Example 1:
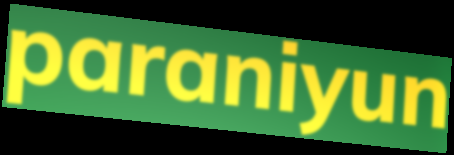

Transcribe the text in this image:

paraniyun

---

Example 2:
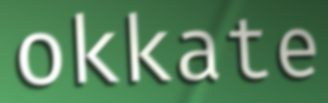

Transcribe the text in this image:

okkate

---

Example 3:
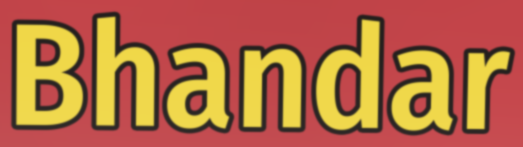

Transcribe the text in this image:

Bhandar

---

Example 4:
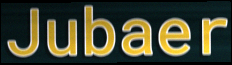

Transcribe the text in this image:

Jubaer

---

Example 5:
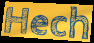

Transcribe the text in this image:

Hech